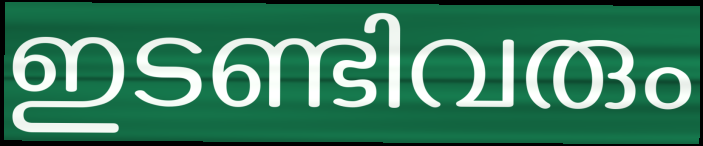
ഇടണ്ടിവരും